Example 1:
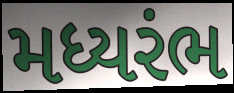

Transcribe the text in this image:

મધ્યરંભ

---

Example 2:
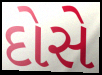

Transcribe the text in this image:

દોસે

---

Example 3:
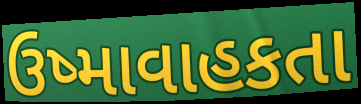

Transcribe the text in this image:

ઉષ્માવાહકતા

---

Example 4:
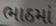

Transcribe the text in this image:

ભાઠમાં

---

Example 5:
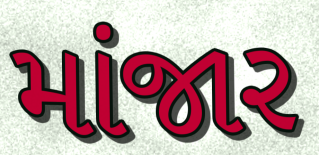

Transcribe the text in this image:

માંજાર